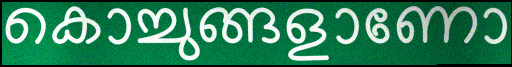
കൊച്ചുങ്ങളാണോ